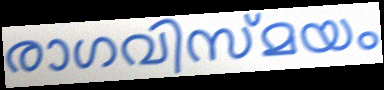
രാഗവിസ്മയം